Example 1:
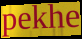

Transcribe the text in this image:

pekhe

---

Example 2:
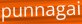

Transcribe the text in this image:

punnagai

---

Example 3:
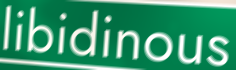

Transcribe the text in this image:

libidinous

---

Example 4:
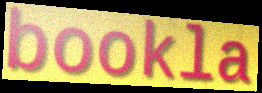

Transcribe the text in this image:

bookla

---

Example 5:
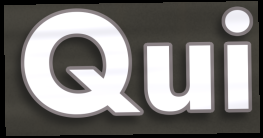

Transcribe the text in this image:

Qui